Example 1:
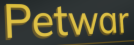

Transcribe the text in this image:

Petwar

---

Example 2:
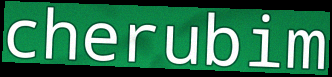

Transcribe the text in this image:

cherubim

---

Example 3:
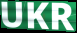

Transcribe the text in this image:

UKR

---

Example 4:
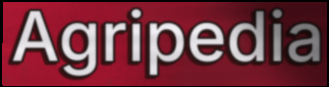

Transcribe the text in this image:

Agripedia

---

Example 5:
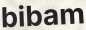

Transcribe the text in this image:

bibam